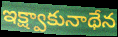
ఇక్ష్వాకునాథేన